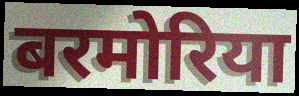
बरमोरिया